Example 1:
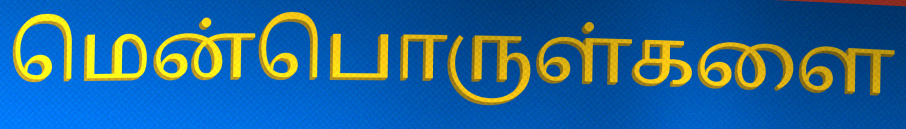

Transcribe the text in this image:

மென்பொருள்களை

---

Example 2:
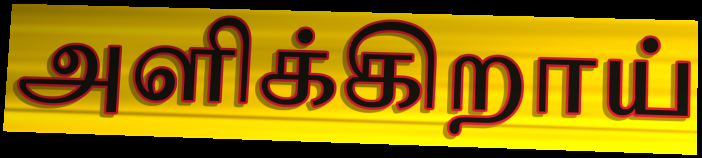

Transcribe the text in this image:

அளிக்கிறாய்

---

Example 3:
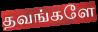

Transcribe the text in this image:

தவங்களே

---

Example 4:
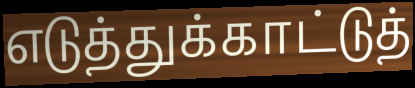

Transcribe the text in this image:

எடுத்துக்காட்டுத்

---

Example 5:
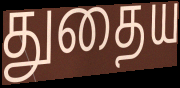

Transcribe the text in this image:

துதைய